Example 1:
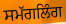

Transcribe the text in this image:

ਸਮੱਗਲਿੰਗ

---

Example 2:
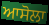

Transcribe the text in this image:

ਆਸੋਲਾ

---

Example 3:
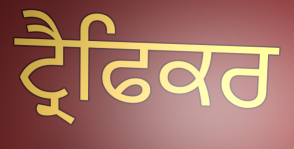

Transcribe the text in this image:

ਟ੍ਰੈਫਿਕਰ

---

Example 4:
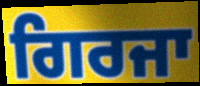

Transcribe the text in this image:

ਗਿਰਜਾ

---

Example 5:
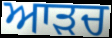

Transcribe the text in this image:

ਆੜਚ